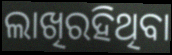
ଲାଖିରହିଥିବା